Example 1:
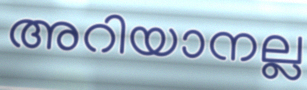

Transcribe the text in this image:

അറിയാനല്ല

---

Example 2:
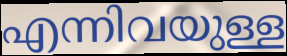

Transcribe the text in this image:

എന്നിവയുള്ള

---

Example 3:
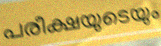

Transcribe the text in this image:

പരീക്ഷയുടെയും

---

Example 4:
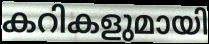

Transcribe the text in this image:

കറികളുമായി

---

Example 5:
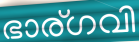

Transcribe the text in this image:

ഭാര്ഗവി